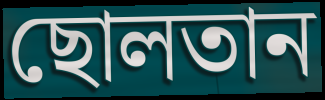
ছোলতান